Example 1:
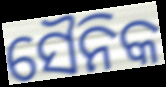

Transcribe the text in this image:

ସୈନିକ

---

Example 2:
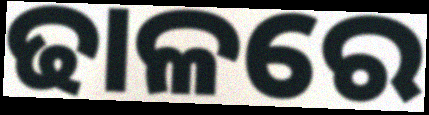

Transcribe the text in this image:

ଢାଳରେ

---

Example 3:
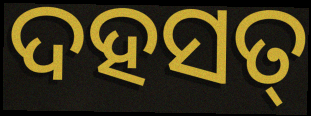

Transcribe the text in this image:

ଦହସତ୍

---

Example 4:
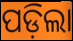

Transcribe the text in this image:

ପଡ଼ିଲା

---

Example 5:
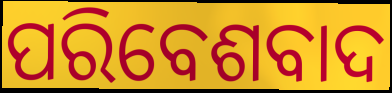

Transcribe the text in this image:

ପରିବେଶବାଦ